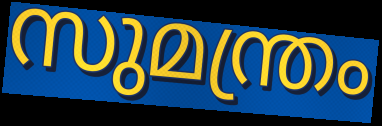
സുമന്ത്രം